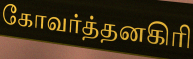
கோவர்த்தனகிரி